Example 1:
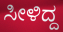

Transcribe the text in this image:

ಸೀಳಿದ್ದ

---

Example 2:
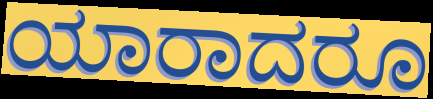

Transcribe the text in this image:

ಯಾರಾದರೂ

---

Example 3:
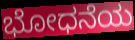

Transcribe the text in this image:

ಭೋಧನೆಯ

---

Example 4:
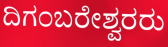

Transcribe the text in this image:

ದಿಗಂಬರೇಶ್ವರರು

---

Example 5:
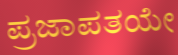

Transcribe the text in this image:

ಪ್ರಜಾಪತಯೇ